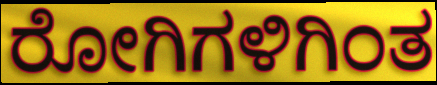
ರೋಗಿಗಳಿಗಿಂತ